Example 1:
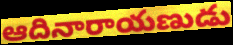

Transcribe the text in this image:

ఆదినారాయణుడు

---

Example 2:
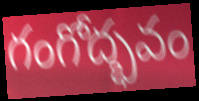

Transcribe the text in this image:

గంగోద్భవం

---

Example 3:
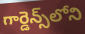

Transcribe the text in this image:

గార్డెన్స్‌లోని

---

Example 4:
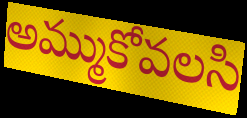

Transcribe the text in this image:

అమ్ముకోవలసి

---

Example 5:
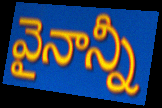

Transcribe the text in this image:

వైనాన్నీ